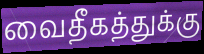
வைதீகத்துக்கு